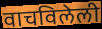
वाचविलेली